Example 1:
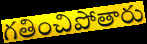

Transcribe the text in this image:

గతించిపోతారు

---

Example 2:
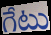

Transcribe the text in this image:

గేటు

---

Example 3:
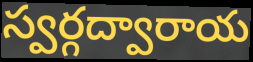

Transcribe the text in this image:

స్వర్గద్వారాయ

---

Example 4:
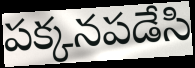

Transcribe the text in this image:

పక్కనపడేసి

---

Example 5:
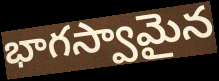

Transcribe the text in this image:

భాగస్వామైన